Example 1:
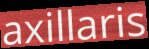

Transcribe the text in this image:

axillaris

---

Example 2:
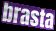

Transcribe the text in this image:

brasta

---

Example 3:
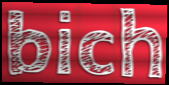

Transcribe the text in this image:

bich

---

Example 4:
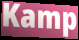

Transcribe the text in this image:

Kamp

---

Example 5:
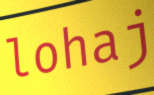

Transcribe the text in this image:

lohaj